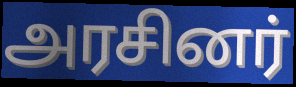
அரசினர்